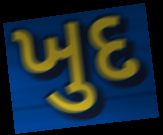
ખુદ